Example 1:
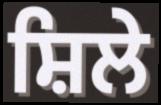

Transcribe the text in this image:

ਸ਼ਿਲੇ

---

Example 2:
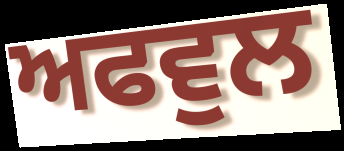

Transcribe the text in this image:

ਅਫਵੁਲ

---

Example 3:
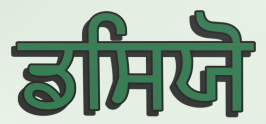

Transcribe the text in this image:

ਡਸਿਯੋ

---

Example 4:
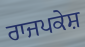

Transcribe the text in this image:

ਰਾਜਪਕੇਸ਼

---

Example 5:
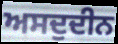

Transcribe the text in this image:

ਅਸਦੁਦੀਨ